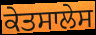
ਕੇਤਸਾਲੇਸ